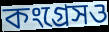
কংগ্রেসও